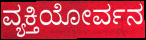
ವ್ಯಕ್ತಿಯೋರ್ವನ